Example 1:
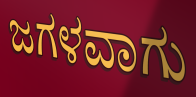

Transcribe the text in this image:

ಜಗಳವಾಗು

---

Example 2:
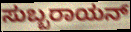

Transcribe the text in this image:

ಸುಬ್ಬರಾಯನ್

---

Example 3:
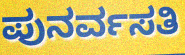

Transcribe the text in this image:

ಪುನರ್ವಸತಿ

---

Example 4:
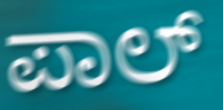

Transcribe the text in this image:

ಪಾಲ್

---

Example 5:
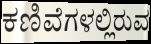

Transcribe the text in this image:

ಕಣಿವೆಗಳಲ್ಲಿರುವ